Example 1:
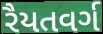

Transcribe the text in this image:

રૈયતવર્ગ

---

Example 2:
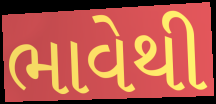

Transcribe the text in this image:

ભાવેથી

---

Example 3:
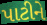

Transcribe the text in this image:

પાટીને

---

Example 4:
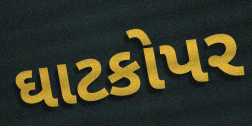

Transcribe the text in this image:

ઘાટકોપર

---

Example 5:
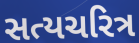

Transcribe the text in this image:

સત્યચરિત્ર